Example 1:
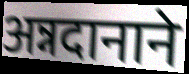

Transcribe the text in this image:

अन्नदानाने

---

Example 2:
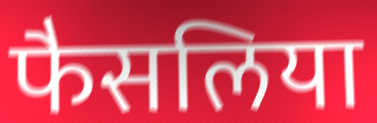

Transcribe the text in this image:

फैसलिया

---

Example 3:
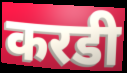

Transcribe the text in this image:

करडी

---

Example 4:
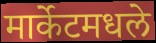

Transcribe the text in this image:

मार्केटमधले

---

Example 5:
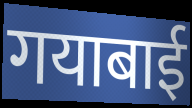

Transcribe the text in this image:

गयाबाई